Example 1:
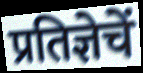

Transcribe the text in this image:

प्रतिज्ञेचें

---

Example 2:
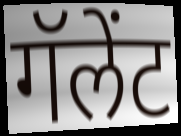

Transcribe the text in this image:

गॅलेंट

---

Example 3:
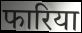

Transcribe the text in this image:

फारिया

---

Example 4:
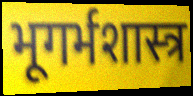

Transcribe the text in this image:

भूगर्भशास्त्र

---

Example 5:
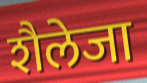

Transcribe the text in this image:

शैलेजा